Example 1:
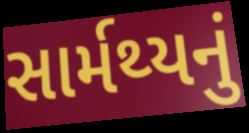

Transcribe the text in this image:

સાર્મથ્યનું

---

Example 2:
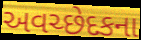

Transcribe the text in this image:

અવચ્છેદકના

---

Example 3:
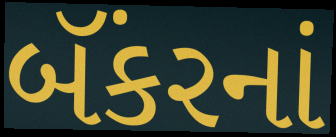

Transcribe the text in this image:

બૅંકરનાં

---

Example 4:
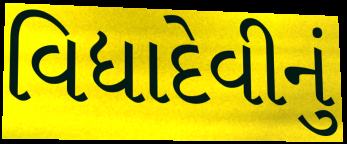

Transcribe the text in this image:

વિદ્યાદેવીનું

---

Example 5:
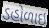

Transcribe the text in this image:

ડહોળાઇ